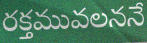
రక్తమువలననే